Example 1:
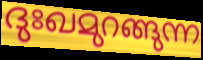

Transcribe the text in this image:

ദുഃഖമുറങ്ങുന്ന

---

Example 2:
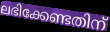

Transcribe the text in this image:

ലഭിക്കേണ്ടതിന്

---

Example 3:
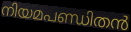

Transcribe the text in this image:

നിയമപണ്ഡിതൻ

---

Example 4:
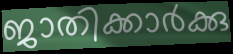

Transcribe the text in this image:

ജാതിക്കാർക്കു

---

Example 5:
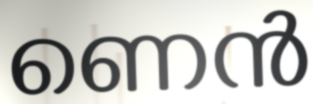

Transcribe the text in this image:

ണെൻ